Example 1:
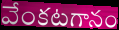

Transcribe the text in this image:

వేంకటగానం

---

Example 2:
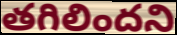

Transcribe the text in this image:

తగిలిందని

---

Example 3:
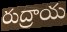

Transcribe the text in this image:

రుద్రాయ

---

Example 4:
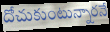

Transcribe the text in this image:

దోచుకుంటున్నారనే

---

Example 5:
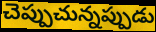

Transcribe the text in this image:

చెప్పుచున్నప్పుడు